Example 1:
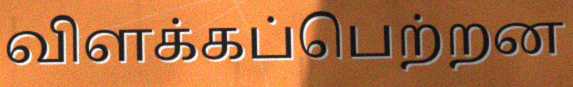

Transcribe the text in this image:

விளக்கப்பெற்றன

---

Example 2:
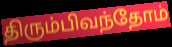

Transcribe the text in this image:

திரும்பிவந்தோம்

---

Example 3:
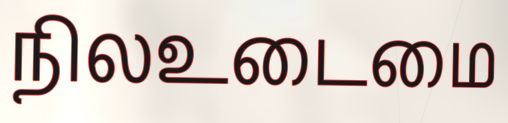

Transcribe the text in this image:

நிலஉடைமை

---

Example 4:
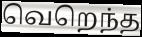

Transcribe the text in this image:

வெறெந்த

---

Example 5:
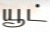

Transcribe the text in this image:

யூட்